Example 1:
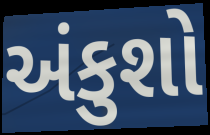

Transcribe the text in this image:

અંકુશો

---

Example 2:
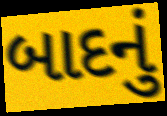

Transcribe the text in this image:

બાદનું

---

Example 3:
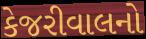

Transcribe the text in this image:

કેજરીવાલનો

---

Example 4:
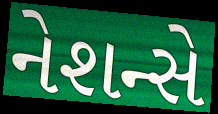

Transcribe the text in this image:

નેશન્સે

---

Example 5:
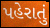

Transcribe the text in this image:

પહેરાતું